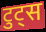
टुट्स